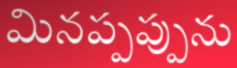
మినప్పప్పును